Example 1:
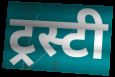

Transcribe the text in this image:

ट्रस्टी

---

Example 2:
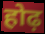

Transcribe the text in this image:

होढ़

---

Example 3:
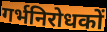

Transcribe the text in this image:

गर्भनिरोधकों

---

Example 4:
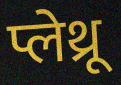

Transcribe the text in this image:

प्लेथ्रू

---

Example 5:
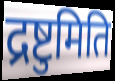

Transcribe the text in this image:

द्रष्टुमिति